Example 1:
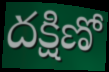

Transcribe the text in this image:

దక్షిణో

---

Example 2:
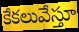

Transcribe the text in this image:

కేకలువేస్తూ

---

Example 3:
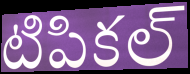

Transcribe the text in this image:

టిపికల్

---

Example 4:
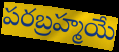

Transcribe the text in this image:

పరబ్రహ్మయే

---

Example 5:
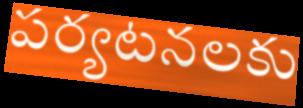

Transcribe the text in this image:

పర్యటనలకు